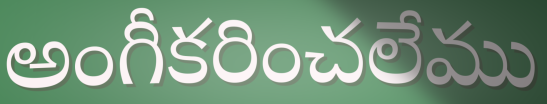
అంగీకరించలేము